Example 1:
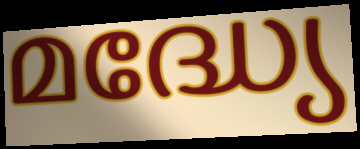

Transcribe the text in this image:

മദ്ധ്യേ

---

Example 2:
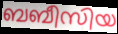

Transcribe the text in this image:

ബബീസിയ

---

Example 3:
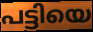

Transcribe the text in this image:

പട്ടിയെ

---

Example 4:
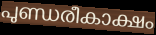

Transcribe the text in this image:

പുണ്ഡരീകാക്ഷം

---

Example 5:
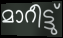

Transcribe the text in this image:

മാറീട്ടു്